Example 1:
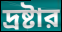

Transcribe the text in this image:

দ্রষ্টার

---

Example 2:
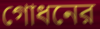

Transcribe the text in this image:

গোধনের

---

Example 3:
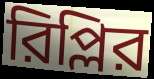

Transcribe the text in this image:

রিপ্লির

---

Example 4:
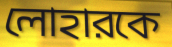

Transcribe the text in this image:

লোহারকে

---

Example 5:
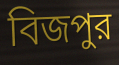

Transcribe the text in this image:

বিজপুর